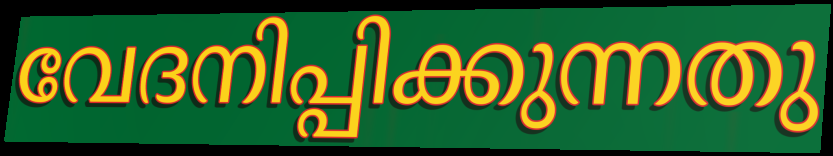
വേദനിപ്പിക്കുന്നതു